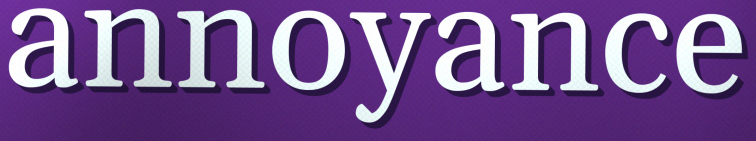
annoyance